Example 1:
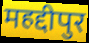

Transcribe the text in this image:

महद्दीपुर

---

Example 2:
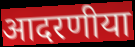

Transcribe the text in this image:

आदरणीया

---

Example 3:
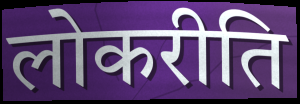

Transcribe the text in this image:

लोकरीति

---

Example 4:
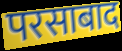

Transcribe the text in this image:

परसाबाद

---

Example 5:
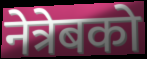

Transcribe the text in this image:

नेत्रेबको